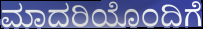
ಮಾದರಿಯೊಂದಿಗೆ